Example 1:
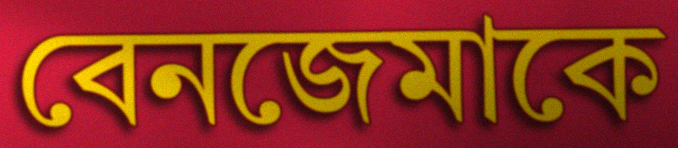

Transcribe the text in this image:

বেনজেমাকে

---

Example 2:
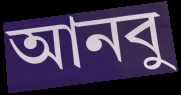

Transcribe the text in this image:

আনবু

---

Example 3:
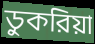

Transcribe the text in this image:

ডুকরিয়া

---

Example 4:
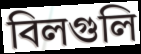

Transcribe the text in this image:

বিলগুলি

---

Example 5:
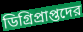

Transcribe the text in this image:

ডিগ্রিপ্রাপ্তদের